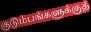
குடும்பங்களுக்குத்